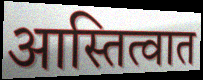
आस्तित्वात